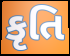
કૃતિ